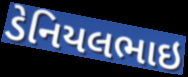
ડેનિયલભાઇ